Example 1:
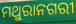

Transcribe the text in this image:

ମଥୁରାନଗରୀ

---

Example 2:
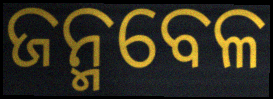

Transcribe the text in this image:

ଜନ୍ମବେଳ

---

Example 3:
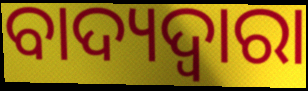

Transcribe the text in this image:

ବାଦ୍ୟଦ୍ୱାରା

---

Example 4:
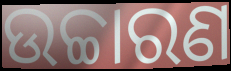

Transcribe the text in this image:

ଉଚ୍ଚାରଣ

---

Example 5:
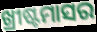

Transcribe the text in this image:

ଖ୍ରୀଷ୍ଟମାସର